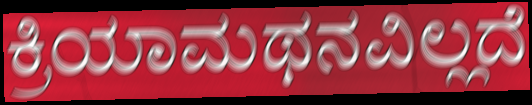
ಕ್ರಿಯಾಮಥನವಿಲ್ಲದೆ